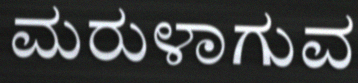
ಮರುಳಾಗುವ